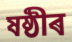
ষষ্ঠীৰ